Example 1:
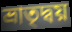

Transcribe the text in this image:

ভ্রাতৃদ্বয়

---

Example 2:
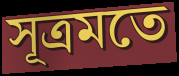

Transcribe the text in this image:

সূত্রমতে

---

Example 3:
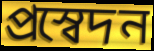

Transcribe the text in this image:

প্রস্বেদন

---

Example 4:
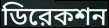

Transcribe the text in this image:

ডিরেকশন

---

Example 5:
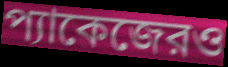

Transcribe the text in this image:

প্যাকেজেরও